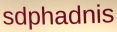
sdphadnis